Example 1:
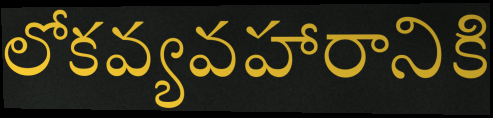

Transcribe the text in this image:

లోకవ్యవహారానికి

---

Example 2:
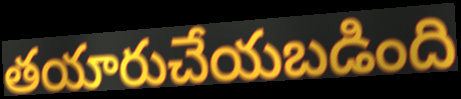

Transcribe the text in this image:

తయారుచేయబడింది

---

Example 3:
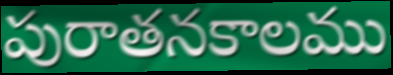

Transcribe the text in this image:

పురాతనకాలము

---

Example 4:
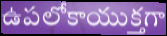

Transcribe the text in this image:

ఉపలోకాయుక్తగా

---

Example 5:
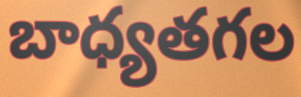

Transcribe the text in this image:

బాధ్యతగల